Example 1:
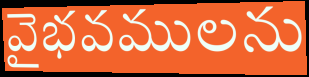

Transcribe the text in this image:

వైభవములను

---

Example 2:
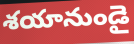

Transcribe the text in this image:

శయానుండై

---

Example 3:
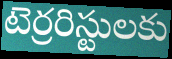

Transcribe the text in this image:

టెర్రరిస్టులకు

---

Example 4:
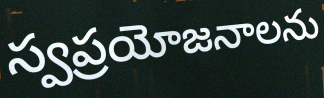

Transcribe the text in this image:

స్వప్రయోజనాలను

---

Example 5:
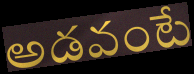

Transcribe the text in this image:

అడవంటే